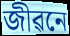
জীৱনে